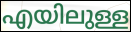
എയിലുള്ള